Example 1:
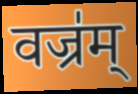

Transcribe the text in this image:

वज्र॑म्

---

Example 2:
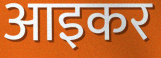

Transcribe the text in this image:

आइकर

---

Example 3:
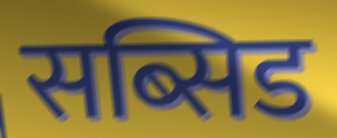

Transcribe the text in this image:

सब्सिड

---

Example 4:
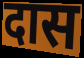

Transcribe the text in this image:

दास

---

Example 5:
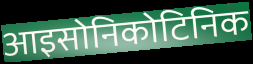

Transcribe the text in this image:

आइसोनिकोटिनिक